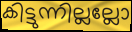
കിട്ടുന്നില്ലല്ലോ